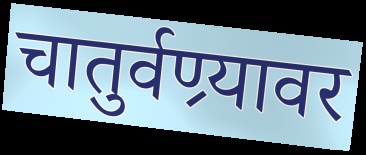
चातुर्वण्र्यावर